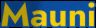
Mauni